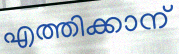
എത്തിക്കാന്